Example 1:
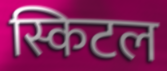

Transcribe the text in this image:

स्किटल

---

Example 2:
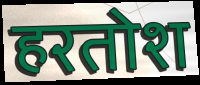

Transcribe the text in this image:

हरतोश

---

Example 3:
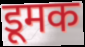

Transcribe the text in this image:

डूमक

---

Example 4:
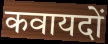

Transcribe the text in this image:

कवायदों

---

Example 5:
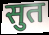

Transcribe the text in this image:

सुत